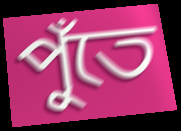
পুঁতে